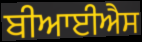
ਬੀਆਈਐਸ